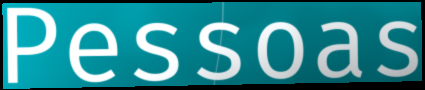
Pessoas